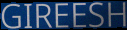
GIREESH